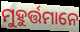
ମୁହୁର୍ତ୍ତମାନେ